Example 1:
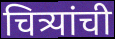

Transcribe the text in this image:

चित्र्यांची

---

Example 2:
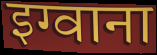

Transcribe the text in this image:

इग्वाना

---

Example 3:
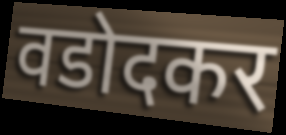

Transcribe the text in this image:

वडोदकर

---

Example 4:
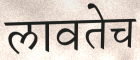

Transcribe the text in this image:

लावतेच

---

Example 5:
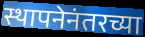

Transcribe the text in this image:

स्थापनेनंतरच्या